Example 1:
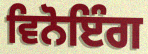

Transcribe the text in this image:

ਵਿਨੋਇੰਗ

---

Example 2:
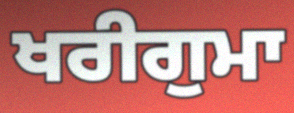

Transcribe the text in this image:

ਖਰੀਗੁਮਾ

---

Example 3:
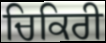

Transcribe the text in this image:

ਚਿਕਿਰੀ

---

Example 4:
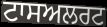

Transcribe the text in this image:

ਟਾਸਅਲਰਟ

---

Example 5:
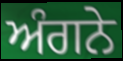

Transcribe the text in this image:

ਅੰਗਨੇ